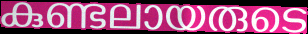
കുണ്ടലായരുടെ